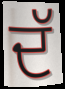
ਦੱ